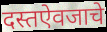
दस्तऐवजाचे